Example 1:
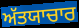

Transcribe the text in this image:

ਅੱਤਯਾਚਾਰ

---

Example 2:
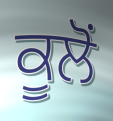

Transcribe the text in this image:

ਕੂਲੋਂ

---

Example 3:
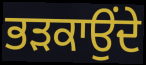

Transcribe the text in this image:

ਭੜਕਾਉਂਦੇ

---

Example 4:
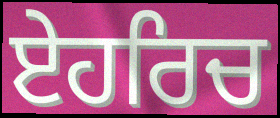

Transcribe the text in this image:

ਏਹਰਿਚ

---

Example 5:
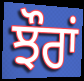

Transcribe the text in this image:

ਝੌਰਾਂ